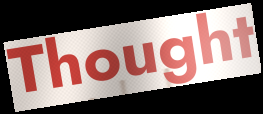
Thought